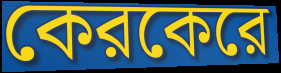
কেরকেরে